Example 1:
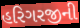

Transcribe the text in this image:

હરિગરજીની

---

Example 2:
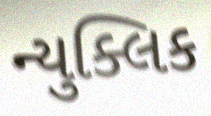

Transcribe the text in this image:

ન્યુક્લિક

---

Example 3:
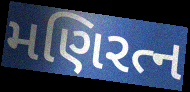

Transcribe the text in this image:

મણિરત્ન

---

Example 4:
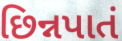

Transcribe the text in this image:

છિન્નપાતં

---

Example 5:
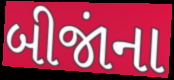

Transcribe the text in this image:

બીજાંના